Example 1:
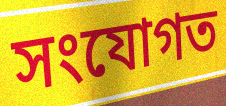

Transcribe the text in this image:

সংযোগত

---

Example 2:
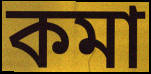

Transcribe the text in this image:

কমা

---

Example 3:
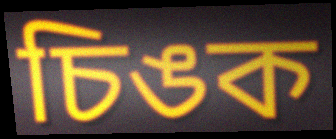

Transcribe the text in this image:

চিঙক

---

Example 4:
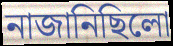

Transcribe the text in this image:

নাজানিছিলো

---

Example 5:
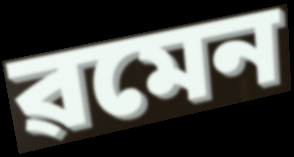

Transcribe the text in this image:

ৱমেন